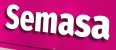
Semasa